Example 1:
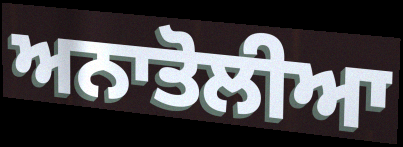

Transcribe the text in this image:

ਅਨਾਤੋਲੀਆ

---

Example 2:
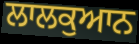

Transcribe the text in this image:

ਲਾਲਕੁਆਨ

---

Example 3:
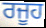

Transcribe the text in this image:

ਰਜੂਹ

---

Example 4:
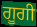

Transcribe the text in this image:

ਗੂਗੀ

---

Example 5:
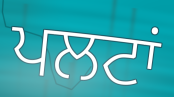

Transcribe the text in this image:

ਪਲਟਾਂ